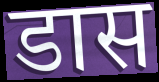
डास